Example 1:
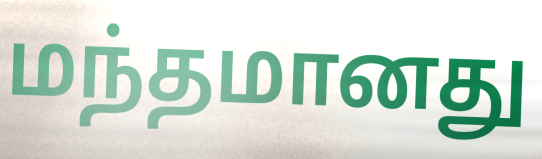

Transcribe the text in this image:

மந்தமானது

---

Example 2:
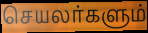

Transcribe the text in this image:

செயலர்களும்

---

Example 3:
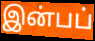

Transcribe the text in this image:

இன்பப்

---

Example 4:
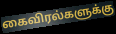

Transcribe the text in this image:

கைவிரல்களுக்கு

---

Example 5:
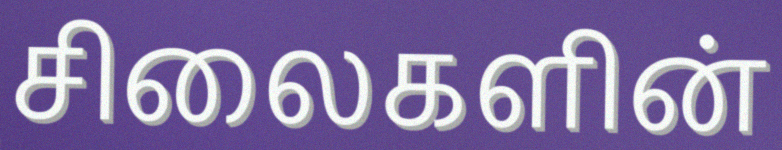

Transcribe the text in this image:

சிலைகளின்